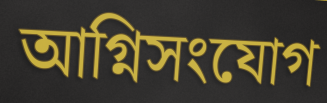
আগ্নিসংযোগ